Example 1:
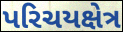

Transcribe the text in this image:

પરિચયક્ષેત્ર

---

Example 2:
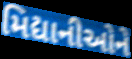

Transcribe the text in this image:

મિદ્યાનીઓને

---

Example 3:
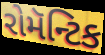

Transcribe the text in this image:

રોમૅન્ટિક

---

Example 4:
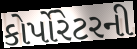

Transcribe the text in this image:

કોર્પોરેટરની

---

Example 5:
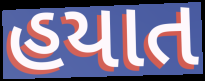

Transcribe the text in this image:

હયાત